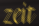
zeit